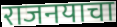
राजनयाचा